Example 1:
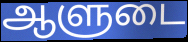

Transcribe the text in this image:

ஆளுடை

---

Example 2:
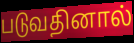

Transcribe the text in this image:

படுவதினால்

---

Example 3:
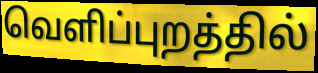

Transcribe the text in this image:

வெளிப்புறத்தில்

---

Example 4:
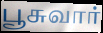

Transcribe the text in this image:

பூசுவார்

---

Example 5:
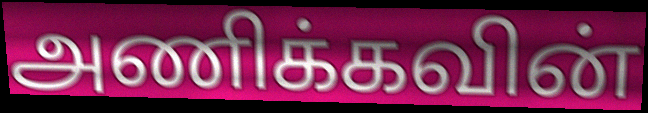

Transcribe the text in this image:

அணிக்கவின்